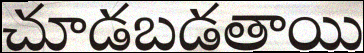
చూడబడతాయి